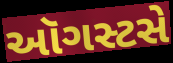
ઑગસ્ટસે